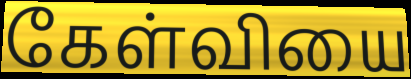
கேள்வியை